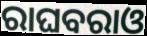
ରାଘବରାଓ